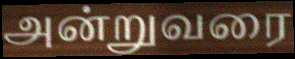
அன்றுவரை